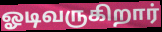
ஓடிவருகிறார்